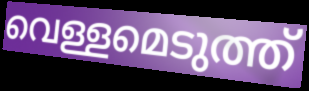
വെള്ളമെടുത്ത്